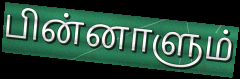
பின்னாளும்